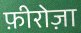
फ़ीरोज़ा